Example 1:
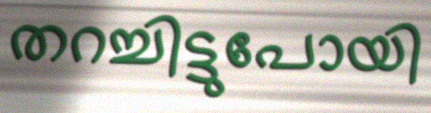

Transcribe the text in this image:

തറച്ചിട്ടുപോയി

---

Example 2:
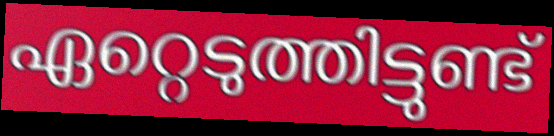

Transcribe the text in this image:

ഏറ്റെടുത്തിട്ടുണ്ട്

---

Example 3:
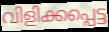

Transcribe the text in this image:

വിളിക്കപ്പെട്ട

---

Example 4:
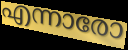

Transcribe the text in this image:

എന്നാരോ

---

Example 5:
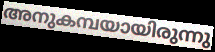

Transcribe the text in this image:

അനുകമ്പയായിരുന്നു